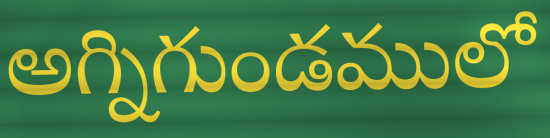
అగ్నిగుండములో